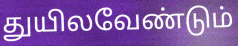
துயிலவேண்டும்